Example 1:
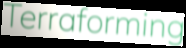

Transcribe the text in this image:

Terraforming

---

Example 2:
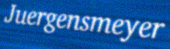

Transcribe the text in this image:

Juergensmeyer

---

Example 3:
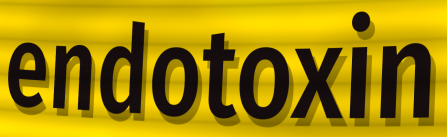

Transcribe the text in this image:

endotoxin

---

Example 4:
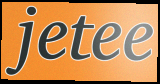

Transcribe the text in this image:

jetee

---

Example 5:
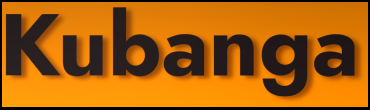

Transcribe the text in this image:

Kubanga